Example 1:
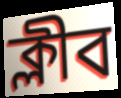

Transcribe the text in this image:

ক্লীব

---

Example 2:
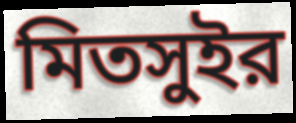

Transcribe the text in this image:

মিতসুইর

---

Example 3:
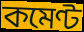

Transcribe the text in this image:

কমেণ্ট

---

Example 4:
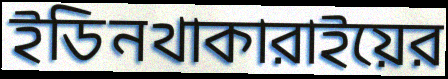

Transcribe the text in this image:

ইডিনথাকারাইয়ের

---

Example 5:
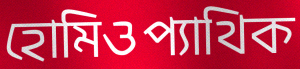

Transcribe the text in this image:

হোমিওপ্যাথিক